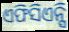
ଏଫିସିଏନ୍ସି